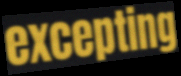
excepting